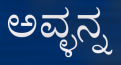
ಅವ್ಳನ್ನ